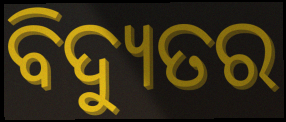
ବିଦ୍ୟୁତର